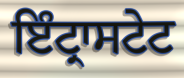
ਇੰਟ੍ਰਾਸਟੇਟ